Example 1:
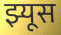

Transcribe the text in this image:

झ्यूस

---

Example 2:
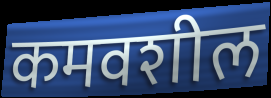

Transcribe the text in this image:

कमवशील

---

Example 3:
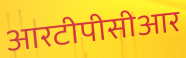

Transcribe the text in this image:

आरटीपीसीआर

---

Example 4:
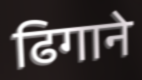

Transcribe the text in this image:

ढिगाने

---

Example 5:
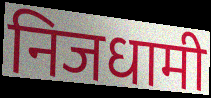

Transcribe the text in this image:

निजधामी